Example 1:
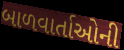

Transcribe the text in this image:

બાળવાર્તાઓની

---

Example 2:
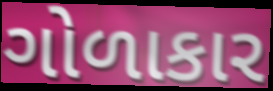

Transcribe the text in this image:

ગોળાકાર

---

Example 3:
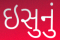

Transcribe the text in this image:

ઇસુનું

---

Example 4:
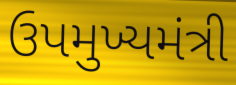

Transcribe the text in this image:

ઉપમુખ્યમંત્રી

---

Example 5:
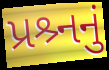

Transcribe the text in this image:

પ્રશ્ર્નનું